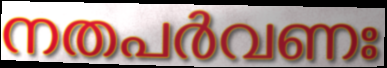
നതപർവണഃ